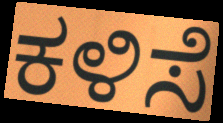
ಕಳಿಸೆ